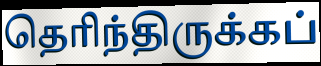
தெரிந்திருக்கப்